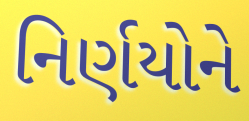
નિર્ણયોને